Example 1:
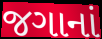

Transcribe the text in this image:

જગાનાં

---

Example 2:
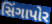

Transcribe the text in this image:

સિંગાપોર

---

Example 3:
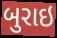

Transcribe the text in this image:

બુરાઇ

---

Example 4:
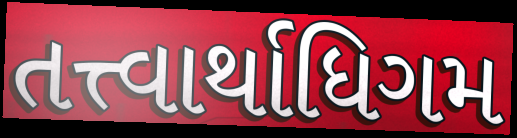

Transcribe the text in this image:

તત્ત્વાર્થાધિગમ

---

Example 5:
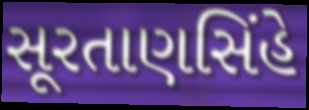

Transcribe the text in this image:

સૂરતાણસિંહે